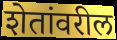
शेतांवरील